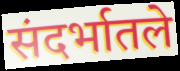
संदर्भातले